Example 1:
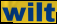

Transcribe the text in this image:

wilt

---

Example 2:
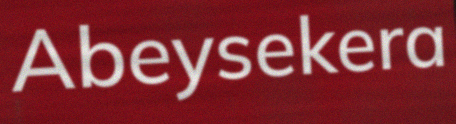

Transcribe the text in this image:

Abeysekera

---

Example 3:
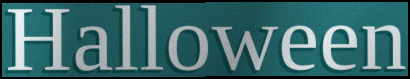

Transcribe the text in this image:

Halloween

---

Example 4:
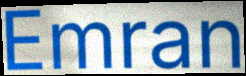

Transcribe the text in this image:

Emran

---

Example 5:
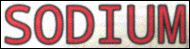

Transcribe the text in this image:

SODIUM